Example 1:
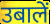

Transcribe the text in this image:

उबालें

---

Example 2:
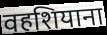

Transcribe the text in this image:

वहशियाना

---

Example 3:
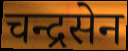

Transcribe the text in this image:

चन्द्रसेन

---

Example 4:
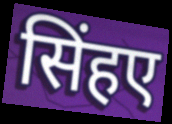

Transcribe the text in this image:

सिंहए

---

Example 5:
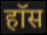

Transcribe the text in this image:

हॉस